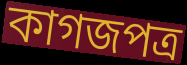
কাগজপত্র